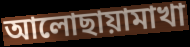
আলোছায়ামাখা